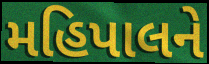
મહિપાલને